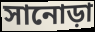
সানোড়া